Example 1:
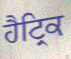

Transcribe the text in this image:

ਹੈਟ੍ਰਿਕ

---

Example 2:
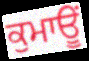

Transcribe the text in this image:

ਕੁਮਾਊਂ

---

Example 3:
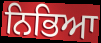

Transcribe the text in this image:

ਨਿਭਿਆ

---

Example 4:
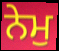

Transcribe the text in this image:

ਨੇਮੁ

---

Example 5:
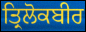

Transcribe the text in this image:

ਤ੍ਰਿਲੋਕਬੀਰ